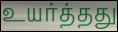
உயர்த்தது